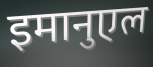
इमानुएल